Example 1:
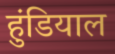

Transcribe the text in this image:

हुंडियाल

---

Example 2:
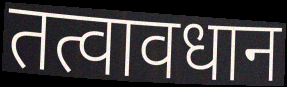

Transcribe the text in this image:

तत्वावधान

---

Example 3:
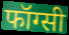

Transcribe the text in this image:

फॉग्सी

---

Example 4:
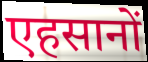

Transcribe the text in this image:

एहसानों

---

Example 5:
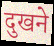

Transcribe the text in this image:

दुखने